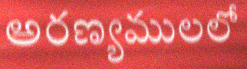
అరణ్యములలో